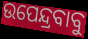
ଉପେନ୍ଦ୍ରବାବୁ